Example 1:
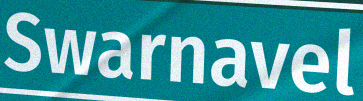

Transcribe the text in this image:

Swarnavel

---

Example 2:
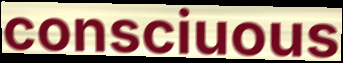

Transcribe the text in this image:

consciuous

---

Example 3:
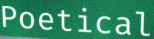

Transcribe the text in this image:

Poetical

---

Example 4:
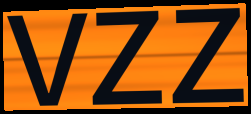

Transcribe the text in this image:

vzz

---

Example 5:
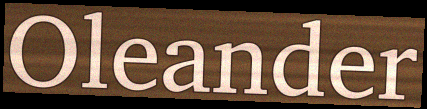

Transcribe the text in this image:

Oleander